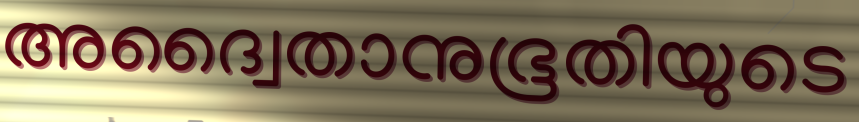
അദ്വൈതാനുഭൂതിയുടെ